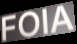
FOIA